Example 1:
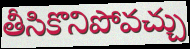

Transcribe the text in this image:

తీసికొనిపోవచ్చు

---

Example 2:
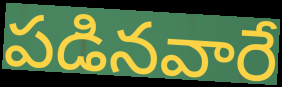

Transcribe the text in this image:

పడినవారే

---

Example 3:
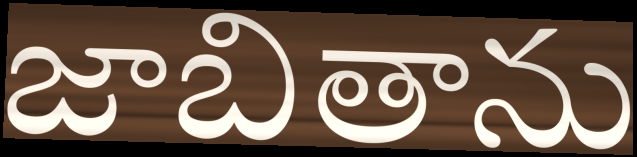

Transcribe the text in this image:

జాబితాను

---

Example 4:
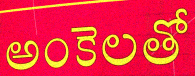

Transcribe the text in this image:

అంకెలతో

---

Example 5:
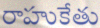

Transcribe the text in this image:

రాహుకేతు